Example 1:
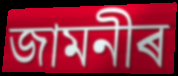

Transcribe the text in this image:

জামনীৰ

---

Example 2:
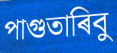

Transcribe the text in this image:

পাগুতাৰিবু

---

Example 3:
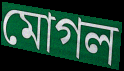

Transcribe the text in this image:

মোগল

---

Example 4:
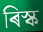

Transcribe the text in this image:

ৰিস্ক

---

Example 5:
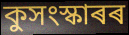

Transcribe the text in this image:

কুসংস্কাৰৰ